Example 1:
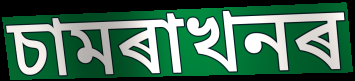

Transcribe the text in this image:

চামৰাখনৰ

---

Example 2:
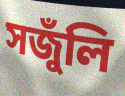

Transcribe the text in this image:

সজুঁলি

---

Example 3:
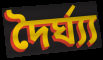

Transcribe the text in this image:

দৈৰ্ঘ্য্য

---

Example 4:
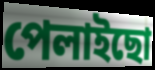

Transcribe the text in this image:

পেলাইছো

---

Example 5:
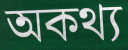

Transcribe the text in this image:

অকথ্য